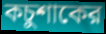
কচুশাকের